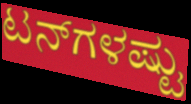
ಟನ್‌ಗಳಷ್ಟು